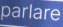
parlare